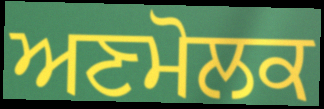
ਅਣਮੋਲਕ